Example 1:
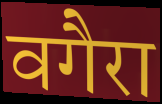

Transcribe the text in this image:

वगैरा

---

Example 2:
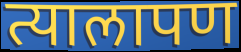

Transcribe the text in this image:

त्यालापण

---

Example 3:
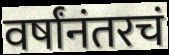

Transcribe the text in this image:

वर्षांनंतरचं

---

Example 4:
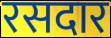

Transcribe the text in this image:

रसदार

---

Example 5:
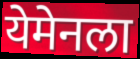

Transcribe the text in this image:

येमेनला